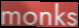
monks